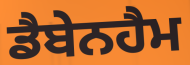
ਡੈਬੇਨਹੈਮ